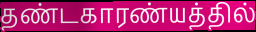
தண்டகாரண்யத்தில்